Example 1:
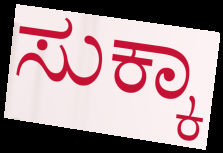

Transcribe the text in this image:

ಸುಕ್ಕಾ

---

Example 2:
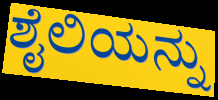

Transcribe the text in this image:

ಶೈಲಿಯನ್ನು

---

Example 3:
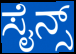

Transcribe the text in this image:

ಸೈನ್ಸ್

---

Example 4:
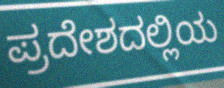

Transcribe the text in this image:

ಪ್ರದೇಶದಲ್ಲಿಯ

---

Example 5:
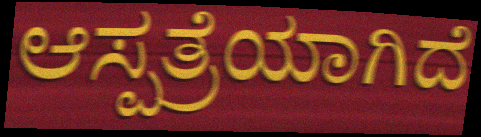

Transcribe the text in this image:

ಆಸ್ಪತ್ರೆಯಾಗಿದೆ